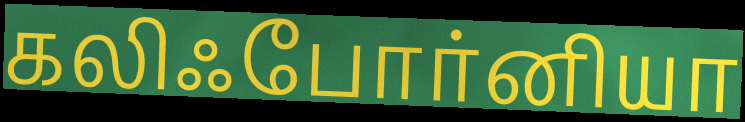
கலிஃபோர்னியா